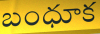
బంధూక